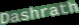
Dashrath